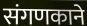
संगणकाने